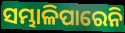
ସମ୍ଭାଳିପାରେନି